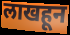
लाखहून